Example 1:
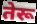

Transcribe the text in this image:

तेरू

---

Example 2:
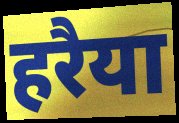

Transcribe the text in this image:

हरैया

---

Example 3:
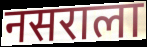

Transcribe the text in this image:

नसराला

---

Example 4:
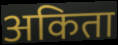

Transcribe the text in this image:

अकिता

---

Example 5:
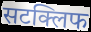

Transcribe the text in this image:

सटक्लिफ